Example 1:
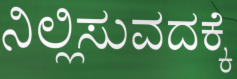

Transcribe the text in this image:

ನಿಲ್ಲಿಸುವದಕ್ಕೆ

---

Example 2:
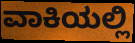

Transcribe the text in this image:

ವಾಕಿಯಲ್ಲಿ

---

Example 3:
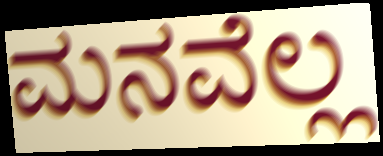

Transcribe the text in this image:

ಮನವೆಲ್ಲ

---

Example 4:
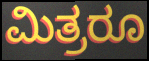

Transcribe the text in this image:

ಮಿತ್ರರೂ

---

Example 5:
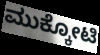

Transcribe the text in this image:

ಮುಕ್ಕೋಟಿ